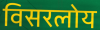
विसरलोय